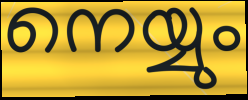
നെയ്യും